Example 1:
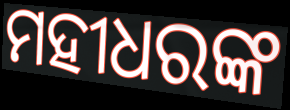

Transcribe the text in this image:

ମହୀଧରଙ୍କ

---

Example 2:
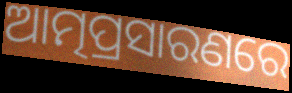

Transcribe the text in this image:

ଆତ୍ମପ୍ରସାରଣରେ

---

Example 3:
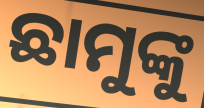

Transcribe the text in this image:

ଛାମୁଙ୍କୁ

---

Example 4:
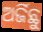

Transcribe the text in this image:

ଅର୍ଜିଛୁ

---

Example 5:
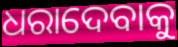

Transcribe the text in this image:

ଧରାଦେବାକୁ